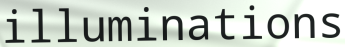
illuminations